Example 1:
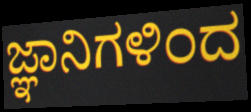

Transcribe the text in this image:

ಜ್ಞಾನಿಗಳಿಂದ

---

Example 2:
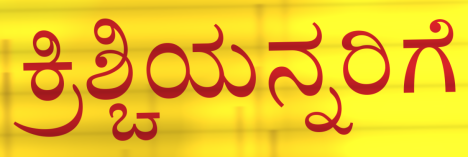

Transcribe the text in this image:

ಕ್ರಿಶ್ಚಿಯನ್ನರಿಗೆ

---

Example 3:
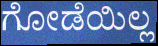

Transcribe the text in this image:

ಗೋಡೆಯಿಲ್ಲ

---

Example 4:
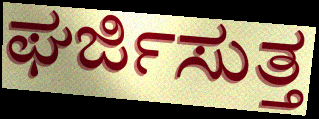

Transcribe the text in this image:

ಘರ್ಜಿಸುತ್ತ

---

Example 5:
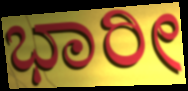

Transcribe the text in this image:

ಭಾರೀ